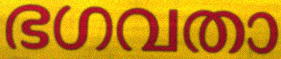
ഭഗവതാ